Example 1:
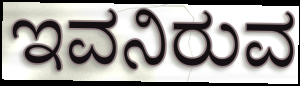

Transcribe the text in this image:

ಇವನಿರುವ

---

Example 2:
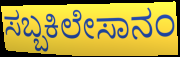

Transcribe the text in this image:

ಸಬ್ಬಕಿಲೇಸಾನಂ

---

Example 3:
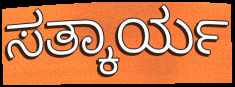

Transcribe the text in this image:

ಸತ್ಕಾರ್ಯ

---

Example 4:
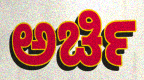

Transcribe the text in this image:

ಅರ್ಚಿ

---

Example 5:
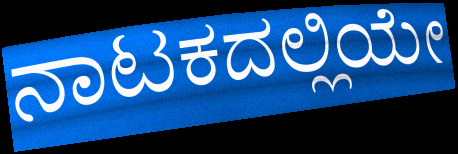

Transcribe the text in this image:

ನಾಟಕದಲ್ಲಿಯೇ